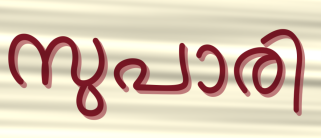
സുപാരി